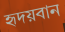
হৃদয়বান